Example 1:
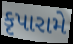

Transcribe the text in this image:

કૃપારામે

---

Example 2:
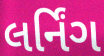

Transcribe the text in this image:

લર્નિંગ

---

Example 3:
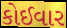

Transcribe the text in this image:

કોઈવાર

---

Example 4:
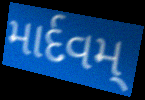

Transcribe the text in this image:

માર્દવમ્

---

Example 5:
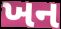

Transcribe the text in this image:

ખન